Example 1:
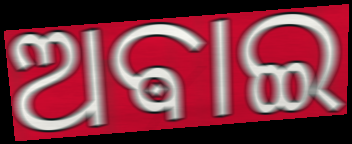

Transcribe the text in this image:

ଅଵାଇ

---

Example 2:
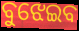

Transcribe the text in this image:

ବୁଝେଇବ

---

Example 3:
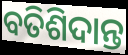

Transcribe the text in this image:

ବତିଶିଦାନ୍ତ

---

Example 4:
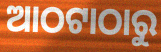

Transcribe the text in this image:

ଆଠଟାଠାରୁ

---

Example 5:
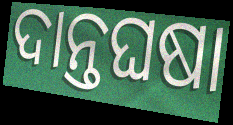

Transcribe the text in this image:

ଦାନ୍ତଘଷା